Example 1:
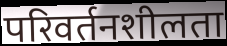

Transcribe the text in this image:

परिवर्तनशीलता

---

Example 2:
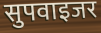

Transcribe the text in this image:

सुपवाइजर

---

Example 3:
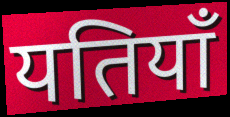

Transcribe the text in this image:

यतियाँ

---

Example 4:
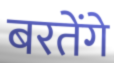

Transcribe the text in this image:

बरतेंगे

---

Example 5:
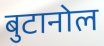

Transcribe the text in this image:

बुटानोल